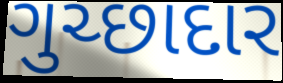
ગુચ્છાદાર